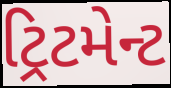
ટ્રિટમેન્ટ